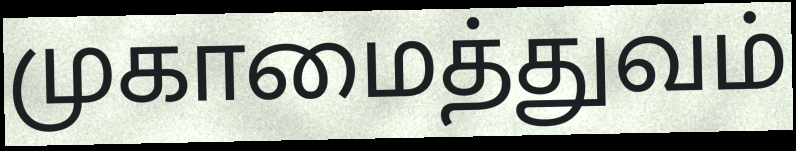
முகாமைத்துவம்